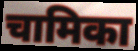
चामिका